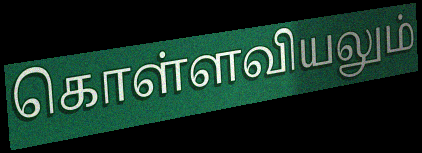
கொள்ளவியலும்